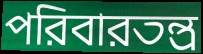
পরিবারতন্ত্র